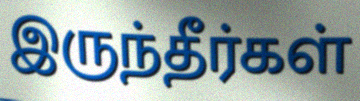
இருந்தீர்கள்